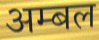
अम्बल